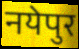
नयेपुर